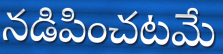
నడిపించటమే